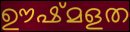
ഊഷ്മളത